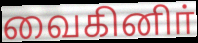
வைகினிர்